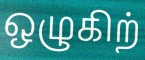
ஒழுகிற்